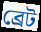
ব্রেট